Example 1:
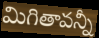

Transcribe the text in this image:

మిగితావన్నీ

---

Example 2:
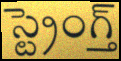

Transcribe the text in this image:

స్ట్రెంగ్త్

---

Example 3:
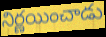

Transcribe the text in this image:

నిర్ణయించాడు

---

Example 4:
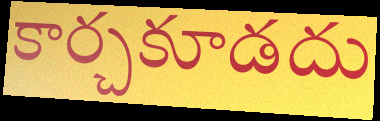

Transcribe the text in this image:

కార్చకూడదు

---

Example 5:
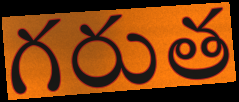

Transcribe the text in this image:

గరుత